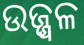
ଉଜ୍ଜ୍ବଳ